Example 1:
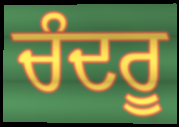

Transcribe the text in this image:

ਚੰਦਰੂ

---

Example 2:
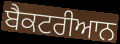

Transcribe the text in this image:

ਬੈਕਟਰੀਆਨ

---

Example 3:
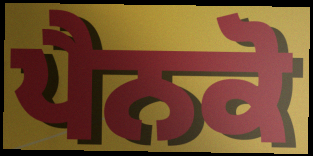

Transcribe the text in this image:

ਪੈਨਕੋ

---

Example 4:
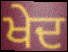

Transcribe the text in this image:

ਖੇਦ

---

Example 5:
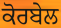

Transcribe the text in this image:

ਕੋਰਬੇਲ